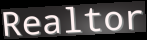
Realtor